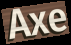
Axe